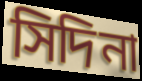
সিদিনা